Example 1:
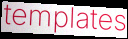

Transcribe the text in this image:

templates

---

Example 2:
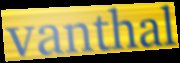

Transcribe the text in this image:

vanthal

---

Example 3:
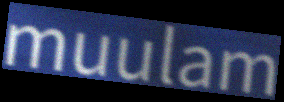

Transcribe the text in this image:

muulam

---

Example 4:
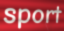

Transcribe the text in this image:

sport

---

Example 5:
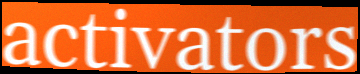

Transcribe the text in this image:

activators